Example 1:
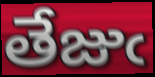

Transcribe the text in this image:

తేజుఁ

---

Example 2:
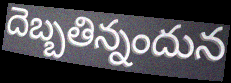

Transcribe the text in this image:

దెబ్బతిన్నందున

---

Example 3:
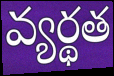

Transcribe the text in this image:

వ్యర్థత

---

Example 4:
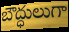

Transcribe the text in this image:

బౌద్ధులుగా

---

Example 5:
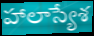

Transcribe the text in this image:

హాలాస్యేశ